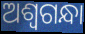
ଅଶ୍ୱଗନ୍ଧା